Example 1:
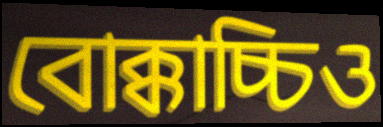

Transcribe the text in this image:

বোক্কাচ্চিও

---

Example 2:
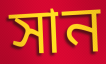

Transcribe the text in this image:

সান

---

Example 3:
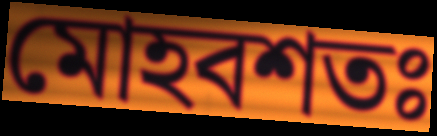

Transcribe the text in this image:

মোহবশতঃ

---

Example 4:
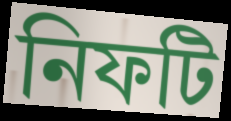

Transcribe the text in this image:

নিফটি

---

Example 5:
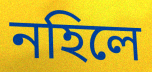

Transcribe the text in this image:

নহিলে